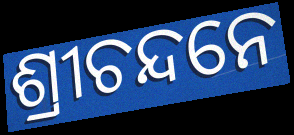
ଶ୍ରୀଚନ୍ଦନେ